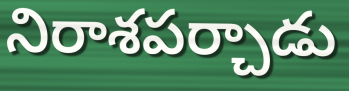
నిరాశపర్చాడు